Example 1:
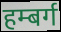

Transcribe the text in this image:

हम्बर्ग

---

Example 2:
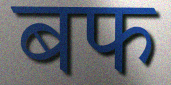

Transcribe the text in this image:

बफ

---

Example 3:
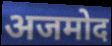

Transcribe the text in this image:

अजमोद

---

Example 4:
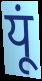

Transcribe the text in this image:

यूं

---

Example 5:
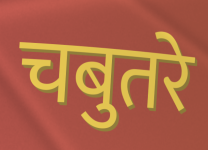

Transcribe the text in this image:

चबुतरे